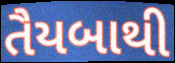
તૈયબાથી